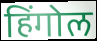
हिंगोल